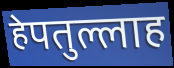
हेपतुल्लाह